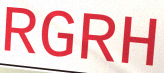
RGRH